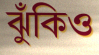
ঝুঁকিও